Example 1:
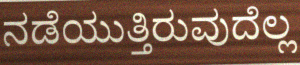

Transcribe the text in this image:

ನಡೆಯುತ್ತಿರುವುದೆಲ್ಲ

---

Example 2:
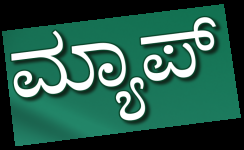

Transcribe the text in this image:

ಮ್ಯಾಪ್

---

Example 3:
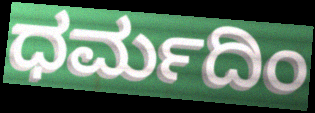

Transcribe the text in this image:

ಧರ್ಮದಿಂ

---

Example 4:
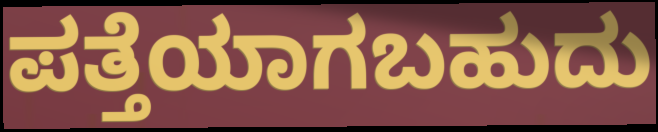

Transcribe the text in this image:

ಪತ್ತೆಯಾಗಬಹುದು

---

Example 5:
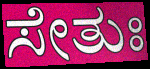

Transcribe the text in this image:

ಸೇತುಃ